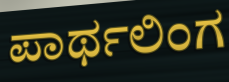
ಪಾರ್ಥಲಿಂಗ